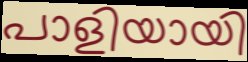
പാളിയായി